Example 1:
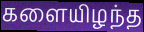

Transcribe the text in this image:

களையிழந்த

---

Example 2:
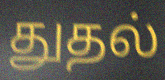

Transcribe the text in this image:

துதல்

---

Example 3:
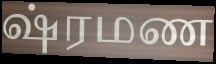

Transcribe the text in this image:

ஷ்ரமண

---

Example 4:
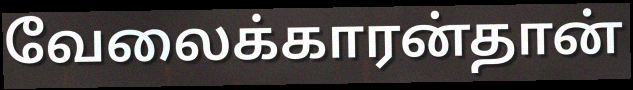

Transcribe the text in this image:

வேலைக்காரன்தான்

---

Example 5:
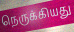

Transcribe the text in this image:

நெருக்கியது